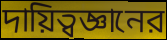
দায়িত্বজ্ঞানের